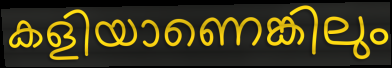
കളിയാണെങ്കിലും